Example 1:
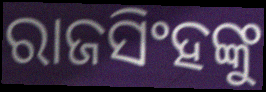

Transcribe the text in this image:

ରାଜସିଂହଙ୍କୁ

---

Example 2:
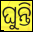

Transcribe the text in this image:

ଘୁନ୍ତି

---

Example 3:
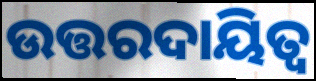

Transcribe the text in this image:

ଉତ୍ତରଦାୟିତ୍ଵ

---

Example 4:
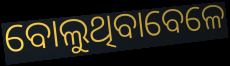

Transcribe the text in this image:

ବୋଲୁଥିବାବେଳେ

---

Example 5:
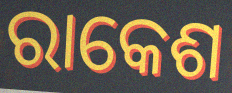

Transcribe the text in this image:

ରାକେଶ